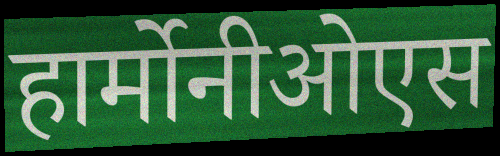
हार्मोनीओएस